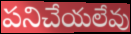
పనిచేయలేవు